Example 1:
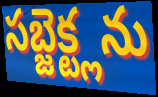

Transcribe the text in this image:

సబ్జెక్ట్లను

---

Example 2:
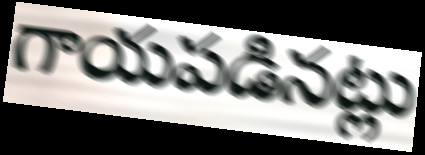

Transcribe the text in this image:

గాయపడినట్లు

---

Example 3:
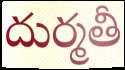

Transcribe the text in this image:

దుర్మతీ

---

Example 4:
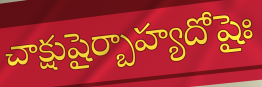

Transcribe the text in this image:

చాక్షుషైర్బాహ్యదోషైః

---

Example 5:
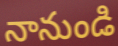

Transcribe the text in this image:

నానుండి